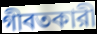
গীবতকারী